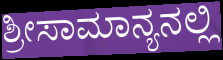
ಶ್ರೀಸಾಮಾನ್ಯನಲ್ಲಿ